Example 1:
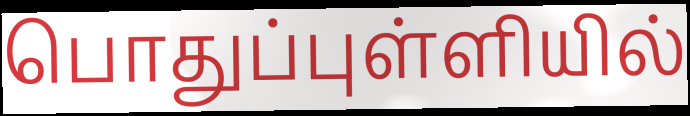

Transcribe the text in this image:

பொதுப்புள்ளியில்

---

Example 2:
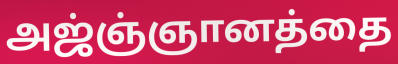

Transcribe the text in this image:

அஜ்ஞ்ஞானத்தை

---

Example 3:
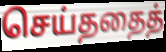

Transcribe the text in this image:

செய்ததைத்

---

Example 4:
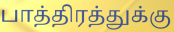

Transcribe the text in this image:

பாத்திரத்துக்கு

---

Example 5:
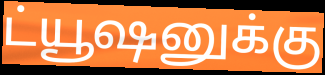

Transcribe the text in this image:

ட்யூஷனுக்கு